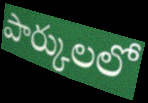
పార్కులలో